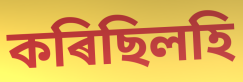
কৰিছিলহি